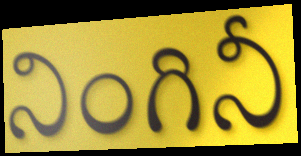
నింగినీ